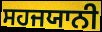
ਸਹਜਯਾਨੀ